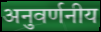
अनुवर्णनीय